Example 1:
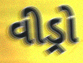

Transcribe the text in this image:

વીડ્રો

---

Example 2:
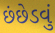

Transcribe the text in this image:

છંછેડવું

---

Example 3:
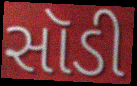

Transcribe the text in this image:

સૉડી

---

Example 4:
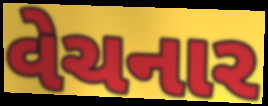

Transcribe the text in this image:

વેચનાર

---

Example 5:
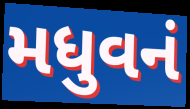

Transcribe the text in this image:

મધુવનં